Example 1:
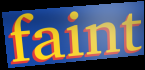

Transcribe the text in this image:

faint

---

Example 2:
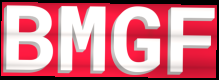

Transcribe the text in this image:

BMGF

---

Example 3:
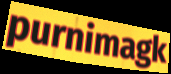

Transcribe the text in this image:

purnimagk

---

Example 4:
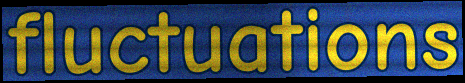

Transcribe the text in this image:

fluctuations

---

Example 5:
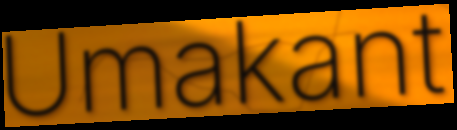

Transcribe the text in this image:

Umakant